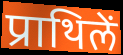
प्राथिलें